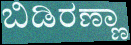
ಬಿಡಿರಣ್ಣಾ